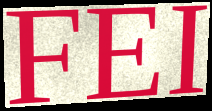
FEI